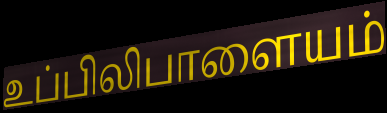
உப்பிலிபாளையம்